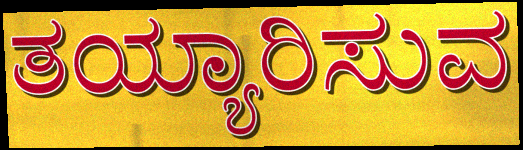
ತಯ್ಯಾರಿಸುವ